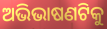
ଅଭିଭାଷଣଟିକୁ